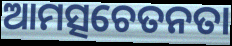
ଆମତ୍ସଚେତନତା